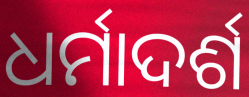
ଧର୍ମାଦର୍ଶ